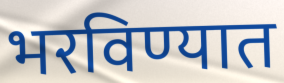
भरविण्यात